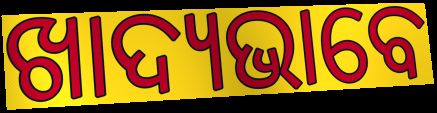
ଖାଦ୍ୟଭାବେ